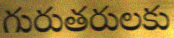
గురుతరులకు